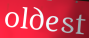
oldest